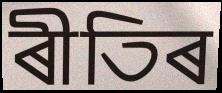
ৰীতিৰ